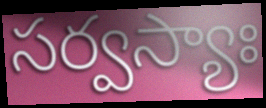
సర్వస్యాః